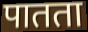
पातता